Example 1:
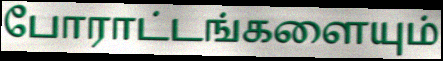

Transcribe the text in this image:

போராட்டங்களையும்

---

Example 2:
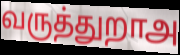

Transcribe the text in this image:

வருத்துறாஅ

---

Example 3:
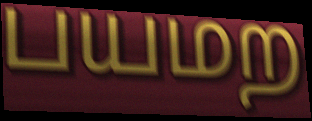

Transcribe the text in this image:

பயமற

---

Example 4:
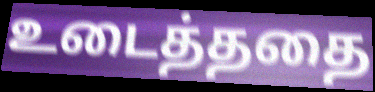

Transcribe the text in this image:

உடைத்ததை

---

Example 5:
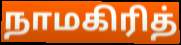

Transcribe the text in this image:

நாமகிரித்